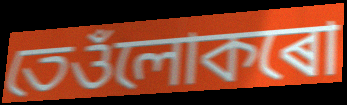
তেওঁলোকৰো